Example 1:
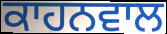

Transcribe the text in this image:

ਕਾਹਨਵਾਲ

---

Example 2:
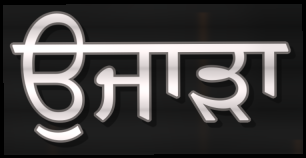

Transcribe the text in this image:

ਉਜਾੜਾ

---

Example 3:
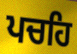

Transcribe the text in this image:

ਪਚਹਿ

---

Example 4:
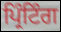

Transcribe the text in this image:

ਪ੍ਰਿੰਟਿੰਗ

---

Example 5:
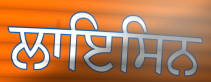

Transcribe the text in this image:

ਲਾਇਸਿਨ